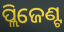
ପ୍ଲିଜେଣ୍ଟ